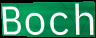
Boch